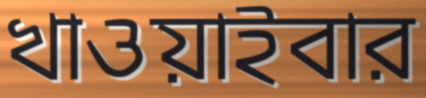
খাওয়াইবার